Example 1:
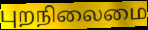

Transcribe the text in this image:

புறநிலைமை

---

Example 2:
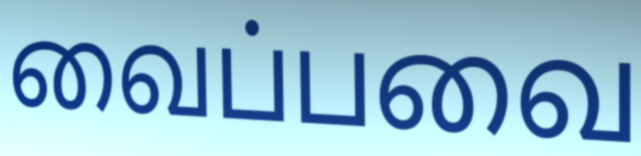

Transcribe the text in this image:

வைப்பவை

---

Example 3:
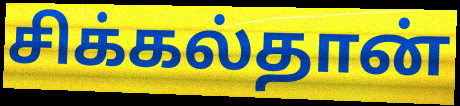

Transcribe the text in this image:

சிக்கல்தான்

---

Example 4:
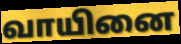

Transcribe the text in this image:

வாயினை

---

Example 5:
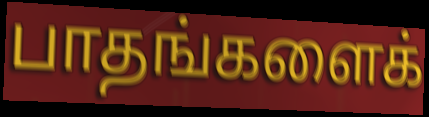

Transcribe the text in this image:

பாதங்களைக்